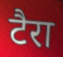
टैरा